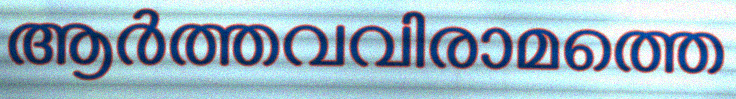
ആർത്തവവിരാമത്തെ